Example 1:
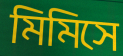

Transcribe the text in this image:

মিমিসে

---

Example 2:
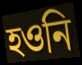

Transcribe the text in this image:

হওনি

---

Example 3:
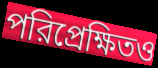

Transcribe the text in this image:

পরিপ্রেক্ষিতও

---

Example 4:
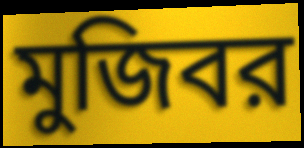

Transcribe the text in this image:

মুজিবর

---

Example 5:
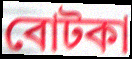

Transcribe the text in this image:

বোটকা